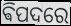
ଵିପଦରେ